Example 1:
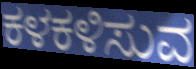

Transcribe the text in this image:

ಕಳಕಳಿಸುವ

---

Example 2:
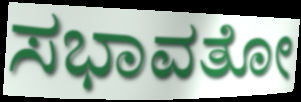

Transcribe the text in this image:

ಸಭಾವತೋ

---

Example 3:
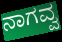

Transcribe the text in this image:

ನಾಗವ್ವ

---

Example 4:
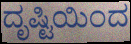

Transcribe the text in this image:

ದೃಷ್ಟಿಯಿಂದ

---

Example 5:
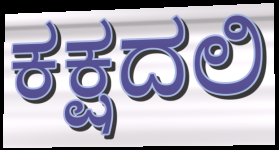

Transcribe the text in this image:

ಕಕ್ಷದಲಿ